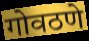
गोवठणे